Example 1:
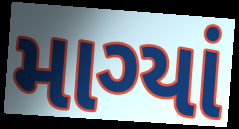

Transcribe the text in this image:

માગ્યાં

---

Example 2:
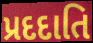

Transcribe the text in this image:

પ્રદદાતિ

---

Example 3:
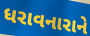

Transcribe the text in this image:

ધરાવનારાને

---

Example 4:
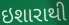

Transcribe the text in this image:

ઇશારાથી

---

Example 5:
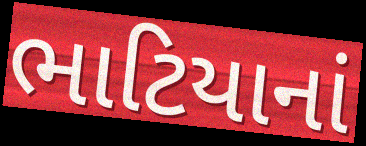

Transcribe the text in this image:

ભાટિયાનાં